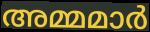
അമ്മമാർ